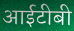
आईटीबी